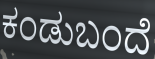
ಕಂಡುಬಂದೆ